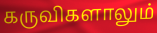
கருவிகளாலும்